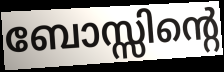
ബോസ്സിന്റെ